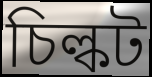
চিল্কট